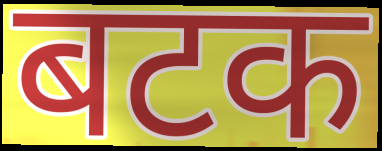
बटक